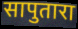
सापुतारा